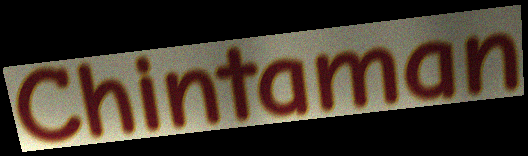
Chintaman